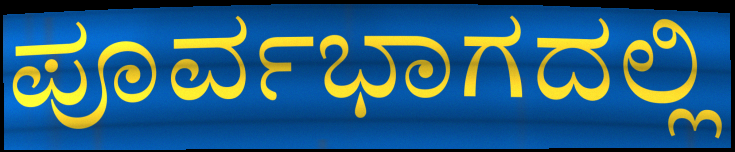
ಪೂರ್ವಭಾಗದಲ್ಲಿ